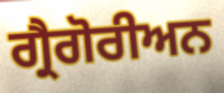
ਗ੍ਰੈਗੋਰੀਅਨ